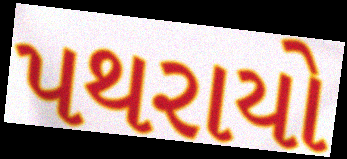
પથરાયો